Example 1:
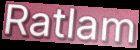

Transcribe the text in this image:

Ratlam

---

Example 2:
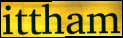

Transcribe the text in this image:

ittham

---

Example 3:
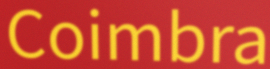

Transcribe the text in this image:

Coimbra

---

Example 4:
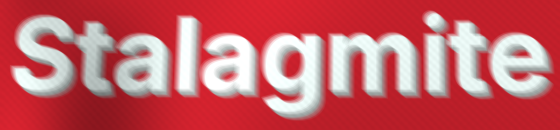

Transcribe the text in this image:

Stalagmite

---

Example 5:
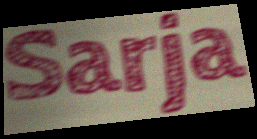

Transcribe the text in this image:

Sarja